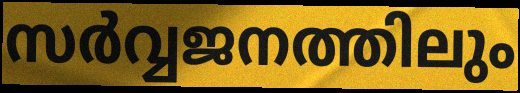
സർവ്വജനത്തിലും